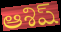
ఆశిష్